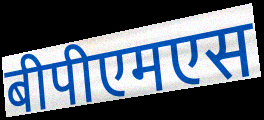
बीपीएमएस